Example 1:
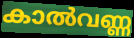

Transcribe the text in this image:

കാൽവണ്ണ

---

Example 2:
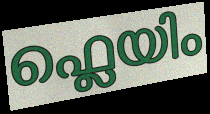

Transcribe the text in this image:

ഫ്ലെയിം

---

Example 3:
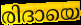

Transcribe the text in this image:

രിദായെ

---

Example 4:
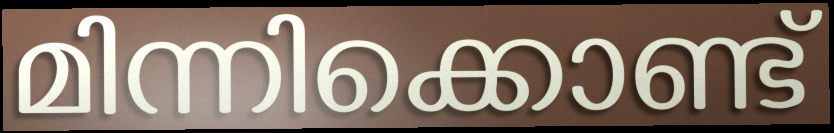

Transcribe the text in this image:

മിന്നിക്കൊണ്ട്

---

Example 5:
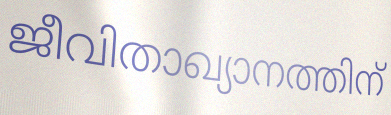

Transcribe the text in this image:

ജീവിതാഖ്യാനത്തിന്